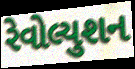
રેવોલ્યુશન